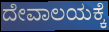
ದೇವಾಲಯಕ್ಕೆ